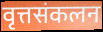
वृत्तसंकलन